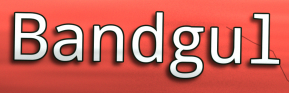
Bandgul